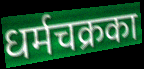
धर्मचक्रका